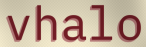
vhalo